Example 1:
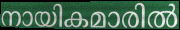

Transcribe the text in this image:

നായികമാരിൽ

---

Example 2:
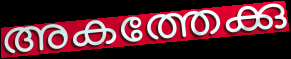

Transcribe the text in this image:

അകത്തേക്കു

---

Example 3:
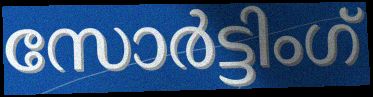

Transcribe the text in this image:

സോർട്ടിംഗ്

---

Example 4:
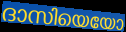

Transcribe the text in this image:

ദാസിയെയോ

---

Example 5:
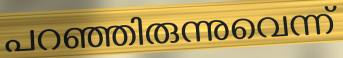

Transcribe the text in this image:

പറഞ്ഞിരുന്നുവെന്ന്